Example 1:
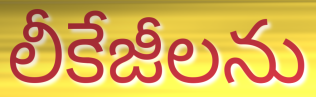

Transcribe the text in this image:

లీకేజీలను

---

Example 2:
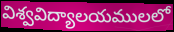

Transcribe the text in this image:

విశ్వవిద్యాలయములలో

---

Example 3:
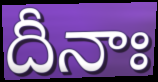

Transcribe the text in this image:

దీనాః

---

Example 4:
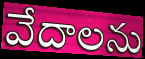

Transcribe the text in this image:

వేదాలను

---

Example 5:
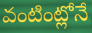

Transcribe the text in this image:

వంటింట్లోనే